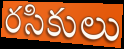
రసికులు